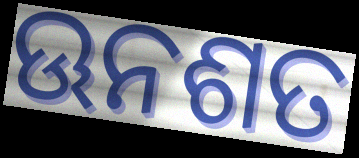
ଊନଶତ